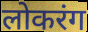
लोकरंग